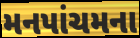
મનપાંચમના